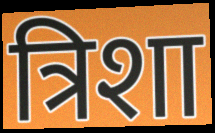
त्रिशा